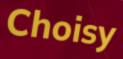
Choisy